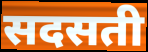
सदसती